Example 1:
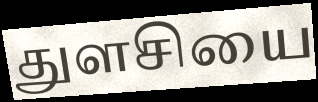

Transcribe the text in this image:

துளசியை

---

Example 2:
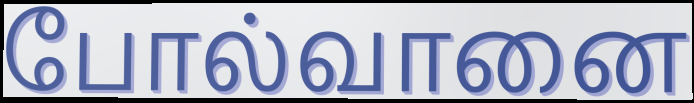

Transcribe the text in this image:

போல்வானை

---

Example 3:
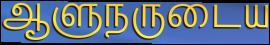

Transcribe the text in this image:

ஆளுநருடைய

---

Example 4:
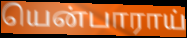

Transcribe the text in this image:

யென்பாராய்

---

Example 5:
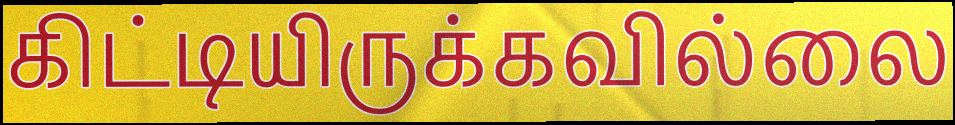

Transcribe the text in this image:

கிட்டியிருக்கவில்லை